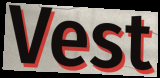
Vest